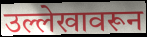
उल्लेखावरून